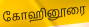
கோஹினூரை